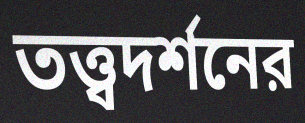
তত্ত্বদর্শনের